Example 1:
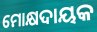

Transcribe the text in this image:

ମୋକ୍ଷଦାୟକ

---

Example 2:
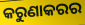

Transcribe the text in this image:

କରୁଣାକରର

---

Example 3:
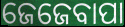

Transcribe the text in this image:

ଜେଜେବାପା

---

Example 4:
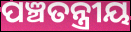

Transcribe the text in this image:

ପଞ୍ଚତନ୍ତ୍ରୀୟ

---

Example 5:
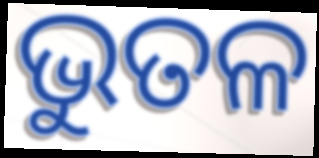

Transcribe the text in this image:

ଭୁତଳ